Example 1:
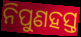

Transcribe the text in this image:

ନିପୁଣହସ୍ତ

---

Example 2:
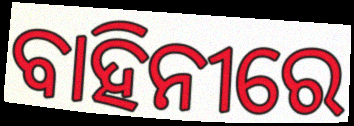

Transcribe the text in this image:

ବାହିନୀରେ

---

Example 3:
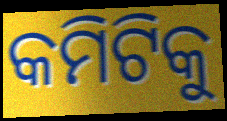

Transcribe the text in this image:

କମିଟିକୁ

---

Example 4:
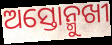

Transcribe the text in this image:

ଅସ୍ତୋନ୍ମୁଖୀ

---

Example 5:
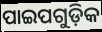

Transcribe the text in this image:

ପାଇପଗୁଡ଼ିକ